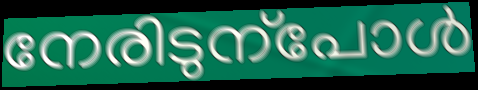
നേരിടുന്പോൾ